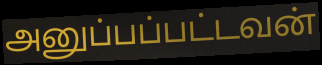
அனுப்பப்பட்டவன்